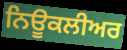
ਨਿਊਕਲੀਅਰ